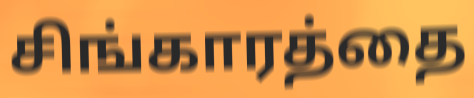
சிங்காரத்தை